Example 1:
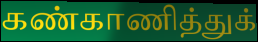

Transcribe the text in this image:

கண்காணித்துக்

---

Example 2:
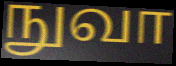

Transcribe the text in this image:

நுவா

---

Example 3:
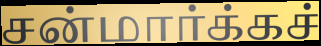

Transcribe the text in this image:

சன்மார்க்கச்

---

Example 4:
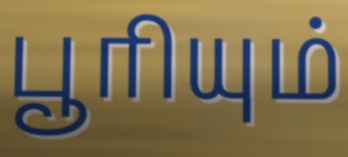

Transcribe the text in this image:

பூரியும்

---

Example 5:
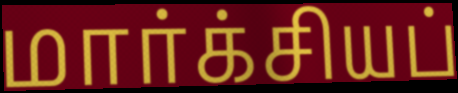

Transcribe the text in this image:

மார்க்சியப்